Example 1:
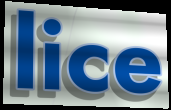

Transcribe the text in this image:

lice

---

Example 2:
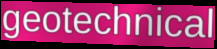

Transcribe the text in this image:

geotechnical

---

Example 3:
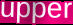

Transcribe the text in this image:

upper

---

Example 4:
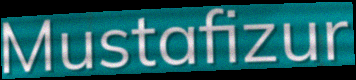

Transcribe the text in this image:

Mustafizur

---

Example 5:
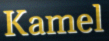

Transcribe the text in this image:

Kamel